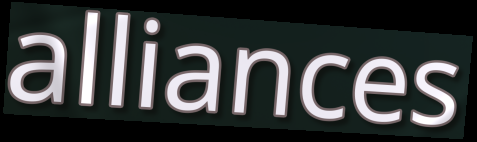
alliances